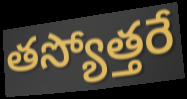
తస్యోత్తరే